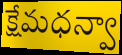
క్షేమధన్వా